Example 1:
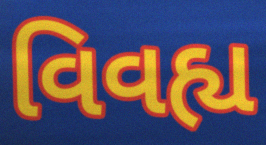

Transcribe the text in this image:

વિવહ્ય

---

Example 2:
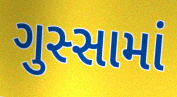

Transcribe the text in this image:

ગુસ્સામાં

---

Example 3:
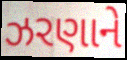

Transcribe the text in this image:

ઝરણાને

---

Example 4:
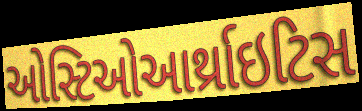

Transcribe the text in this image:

ઓસ્ટિઓઆર્થ્રાઇટિસ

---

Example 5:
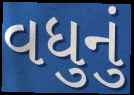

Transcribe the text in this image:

વધુનું